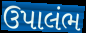
ઉપાલંભ